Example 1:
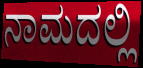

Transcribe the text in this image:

ನಾಮದಲ್ಲಿ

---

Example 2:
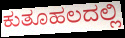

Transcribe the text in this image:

ಕುತೂಹಲದಲ್ಲಿ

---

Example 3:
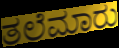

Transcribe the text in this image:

ತಲೆಮಾರು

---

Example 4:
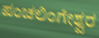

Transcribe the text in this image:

ಪಂಚಲಿಂಗೇಶ್ವರ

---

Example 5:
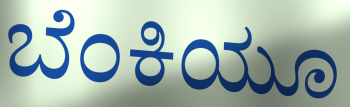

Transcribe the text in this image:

ಬೆಂಕಿಯೂ